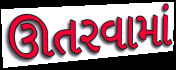
ઊતરવામાં